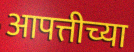
आपत्तीच्या